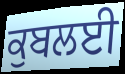
ਕੁਬਲਈ